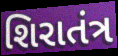
શિરાતંત્ર